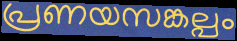
പ്രണയസങ്കല്പം